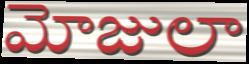
మోజులా